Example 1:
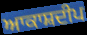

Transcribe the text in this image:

ਆਕਾਸ਼ਦੀਪ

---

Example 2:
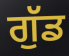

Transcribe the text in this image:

ਗੁੱਡ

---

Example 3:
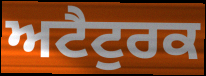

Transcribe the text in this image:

ਅਟੈਟੁਰਕ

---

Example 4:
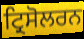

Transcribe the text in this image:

ਟ੍ਰਿਸੋਲਰਨ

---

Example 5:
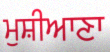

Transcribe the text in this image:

ਮੁਸ਼ੀਆਣਾ